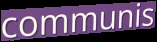
communis